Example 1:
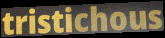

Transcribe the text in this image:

tristichous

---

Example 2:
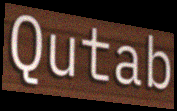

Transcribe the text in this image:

Qutab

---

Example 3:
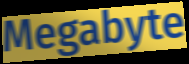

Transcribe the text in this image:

Megabyte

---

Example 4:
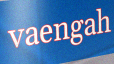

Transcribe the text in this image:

vaengah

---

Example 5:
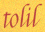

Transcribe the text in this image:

tolil